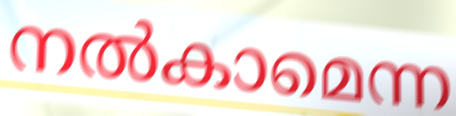
നൽകാമെന്ന